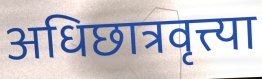
अधिछात्रवृत्त्या